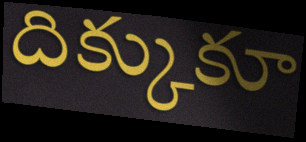
దిక్కుకూ